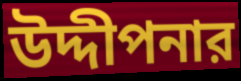
উদ্দীপনার